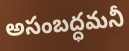
అసంబద్ధమనీ